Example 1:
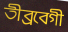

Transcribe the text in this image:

তীব্ৰবেগী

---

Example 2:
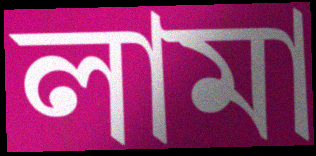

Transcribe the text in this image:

লামা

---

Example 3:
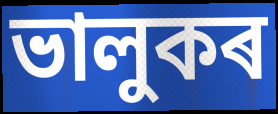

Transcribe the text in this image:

ভালুকৰ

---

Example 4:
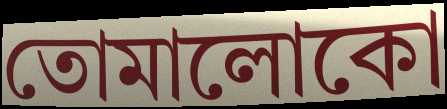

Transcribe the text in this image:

তোমালোকো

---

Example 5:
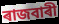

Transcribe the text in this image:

ৰাজবাৰী